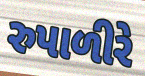
રુપાળીરે